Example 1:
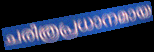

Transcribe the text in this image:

ചരിത്രപ്രധാനമായ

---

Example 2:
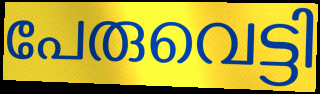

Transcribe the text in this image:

പേരുവെട്ടി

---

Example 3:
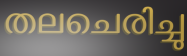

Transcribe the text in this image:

തലചെരിച്ചു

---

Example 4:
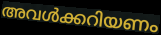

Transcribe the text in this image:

അവൾക്കറിയണം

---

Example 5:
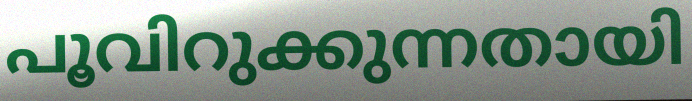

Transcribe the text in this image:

പൂവിറുക്കുന്നതായി